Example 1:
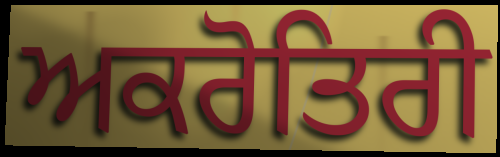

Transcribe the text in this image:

ਅਕਰੋਤਿਰੀ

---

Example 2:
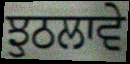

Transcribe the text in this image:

ਝੁਠਲਾਵੇ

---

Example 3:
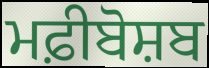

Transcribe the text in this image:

ਮਫ਼ੀਬੋਸ਼ਬ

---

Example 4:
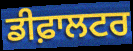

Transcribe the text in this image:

ਡੀਫ਼ਾਲਟਰ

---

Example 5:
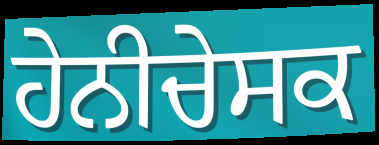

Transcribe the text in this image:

ਹੇਨੀਚੇਸਕ